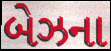
બેઝના